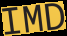
IMD